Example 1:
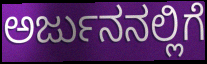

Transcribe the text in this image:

ಅರ್ಜುನನಲ್ಲಿಗೆ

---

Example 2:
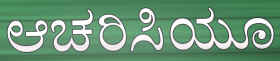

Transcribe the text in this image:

ಆಚರಿಸಿಯೂ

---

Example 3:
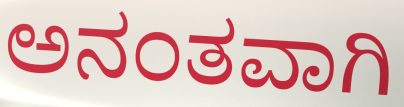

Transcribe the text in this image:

ಅನಂತವಾಗಿ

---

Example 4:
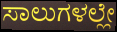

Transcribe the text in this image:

ಸಾಲುಗಳಲ್ಲೇ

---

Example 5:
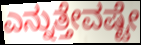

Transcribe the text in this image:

ಎನ್ನುತ್ತೇವಷ್ಟೇ